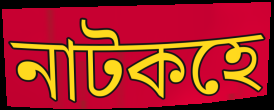
নাটকহে